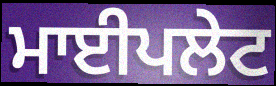
ਮਾਈਪਲੇਟ